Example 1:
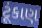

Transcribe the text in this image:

ટૂંકાણ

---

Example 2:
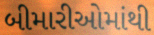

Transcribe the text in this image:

બીમારીઓમાંથી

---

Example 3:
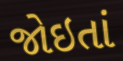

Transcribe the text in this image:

જોઇતાં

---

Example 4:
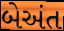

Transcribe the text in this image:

બેઅંત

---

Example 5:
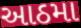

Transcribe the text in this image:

આઠમા